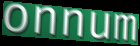
onnum